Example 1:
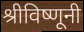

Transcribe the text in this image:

श्रीविष्णूनी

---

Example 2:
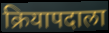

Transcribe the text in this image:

क्रियापदाला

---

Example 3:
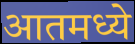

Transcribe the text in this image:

आतमध्ये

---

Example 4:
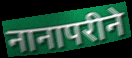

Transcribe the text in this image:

नानापरीने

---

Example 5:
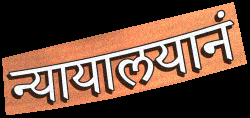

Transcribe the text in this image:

न्यायालयानं